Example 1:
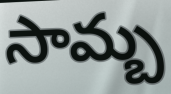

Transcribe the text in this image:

సామ్బ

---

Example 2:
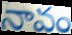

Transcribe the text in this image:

నావం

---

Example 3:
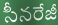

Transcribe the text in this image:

సీనరేజీ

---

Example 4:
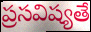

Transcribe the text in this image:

ప్రసవిష్యతే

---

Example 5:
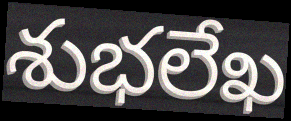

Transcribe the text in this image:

శుభలేఖ